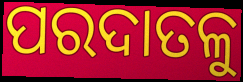
ପରଦାତଳୁ